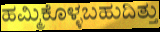
ಹಮ್ಮಿಕೊಳ್ಳಬಹುದಿತ್ತು